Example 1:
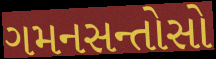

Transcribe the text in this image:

ગમનસન્તોસો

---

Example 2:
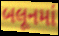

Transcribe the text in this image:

બલૂનમાં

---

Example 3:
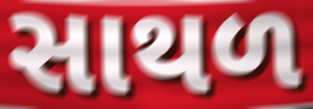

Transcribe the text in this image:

સાથળ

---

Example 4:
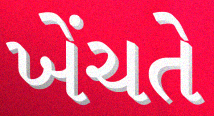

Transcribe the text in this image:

ખેંચતે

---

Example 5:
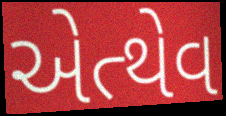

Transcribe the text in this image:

એત્થેવ